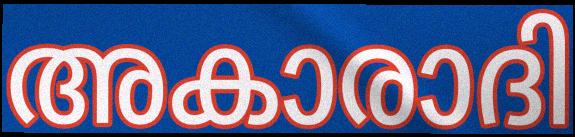
അകാരാദി